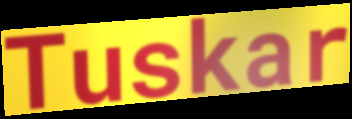
Tuskar